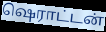
ஷெராட்டன்